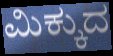
ಮಿಕ್ಕುದ